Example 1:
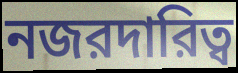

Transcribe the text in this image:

নজরদারিত্ব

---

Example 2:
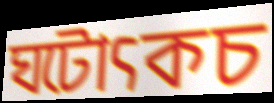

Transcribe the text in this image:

ঘটোৎকচ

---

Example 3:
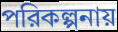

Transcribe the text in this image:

পরিকল্পনায়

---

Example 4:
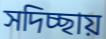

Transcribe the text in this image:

সদিচ্ছায়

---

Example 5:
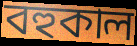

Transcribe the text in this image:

বহুকাল